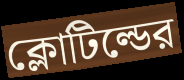
ক্লোটিল্ডের